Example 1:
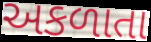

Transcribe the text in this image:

અકળાતા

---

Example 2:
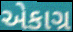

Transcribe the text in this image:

એકાગ્ર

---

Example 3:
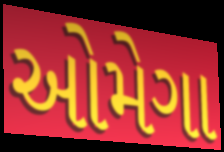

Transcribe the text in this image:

ઓમેગા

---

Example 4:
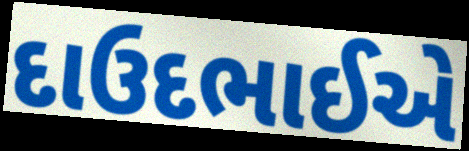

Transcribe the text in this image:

દાઉદભાઈએ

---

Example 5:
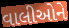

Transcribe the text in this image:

વાલીઓને